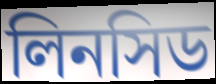
লিনসিড